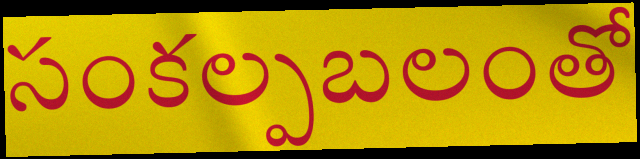
సంకల్పబలంతో